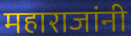
महाराजांनी